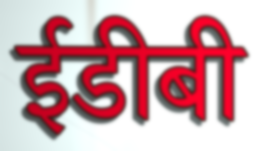
ईडीबी